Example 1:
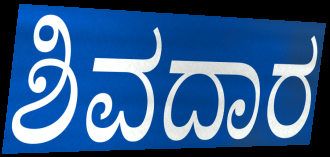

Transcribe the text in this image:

ಶಿವದಾರ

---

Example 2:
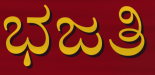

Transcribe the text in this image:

ಭಜತಿ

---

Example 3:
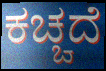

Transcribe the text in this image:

ಕಚ್ಚದೆ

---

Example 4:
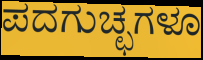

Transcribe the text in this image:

ಪದಗುಚ್ಛಗಳೂ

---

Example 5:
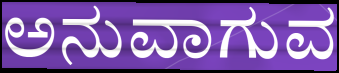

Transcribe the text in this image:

ಅನುವಾಗುವ